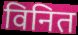
विनित